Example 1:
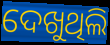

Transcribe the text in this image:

ଦେଖୁଥିଲି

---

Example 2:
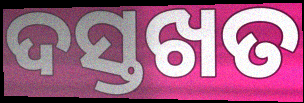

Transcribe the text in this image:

ଦସ୍ତଖତ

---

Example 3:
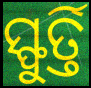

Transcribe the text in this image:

ସ୍ଫୁର୍ତ୍ତି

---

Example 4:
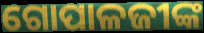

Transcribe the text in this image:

ଗୋପାଳଜୀଙ୍କ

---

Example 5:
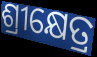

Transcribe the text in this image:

ଶ୍ରୀକ୍ଷେତ୍ର